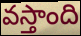
వస్తాంది